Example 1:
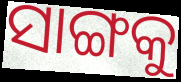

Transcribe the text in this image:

ସାଙ୍ଗକୁ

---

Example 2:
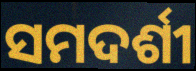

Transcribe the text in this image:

ସମଦର୍ଶୀ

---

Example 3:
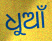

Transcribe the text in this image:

ଧୁଆଁ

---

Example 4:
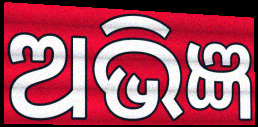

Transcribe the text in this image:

ଅଭିଜ୍ଞ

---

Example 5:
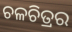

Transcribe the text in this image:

ଚଳଚିତ୍ରର